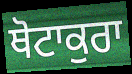
ਥੋਟਾਕੁਰਾ